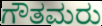
ಗೌತಮರು